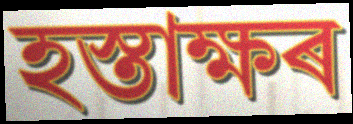
হস্তাক্ষৰ